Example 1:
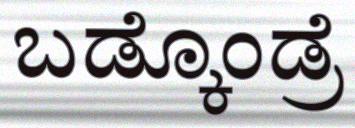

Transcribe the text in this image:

ಬಡ್ಕೊಂಡ್ರೆ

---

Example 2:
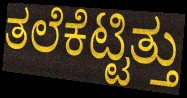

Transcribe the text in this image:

ತಲೆಕೆಟ್ಟಿತ್ತು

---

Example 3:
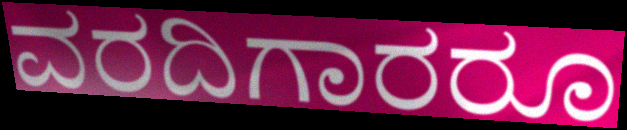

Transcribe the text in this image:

ವರದಿಗಾರರೂ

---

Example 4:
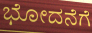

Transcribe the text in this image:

ಭೋದನೆಗೆ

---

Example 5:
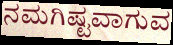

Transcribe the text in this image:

ನಮಗಿಷ್ಟವಾಗುವ